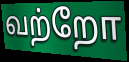
வற்றோ